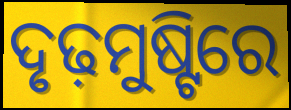
ଦୃଢ଼ମୁଷ୍ଟିରେ